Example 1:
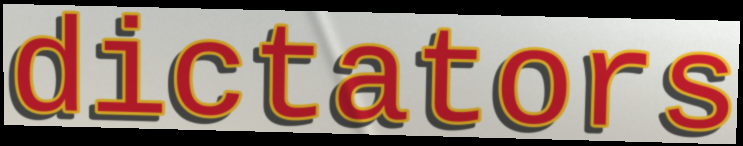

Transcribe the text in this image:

dictators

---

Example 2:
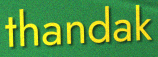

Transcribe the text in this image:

thandak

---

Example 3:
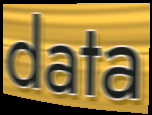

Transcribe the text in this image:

data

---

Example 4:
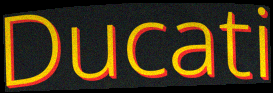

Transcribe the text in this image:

Ducati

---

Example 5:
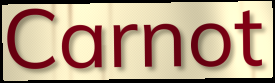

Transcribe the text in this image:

Carnot